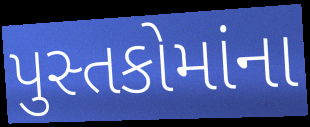
પુસ્તકોમાંના